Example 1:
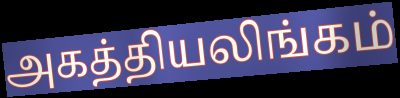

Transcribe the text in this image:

அகத்தியலிங்கம்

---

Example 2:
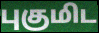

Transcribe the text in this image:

புகுமிட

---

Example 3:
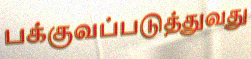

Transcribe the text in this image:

பக்குவப்படுத்துவது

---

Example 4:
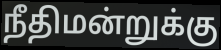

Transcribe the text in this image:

நீதிமன்றுக்கு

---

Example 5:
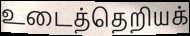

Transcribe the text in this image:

உடைத்தெறியக்